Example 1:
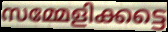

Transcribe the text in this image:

സമ്മേളിക്കട്ടെ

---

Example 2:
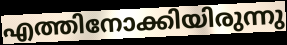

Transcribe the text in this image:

എത്തിനോക്കിയിരുന്നു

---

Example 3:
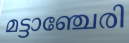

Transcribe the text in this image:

മട്ടാഞ്ചേരി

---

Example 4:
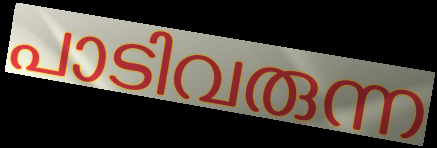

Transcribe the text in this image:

പാടിവരുന്ന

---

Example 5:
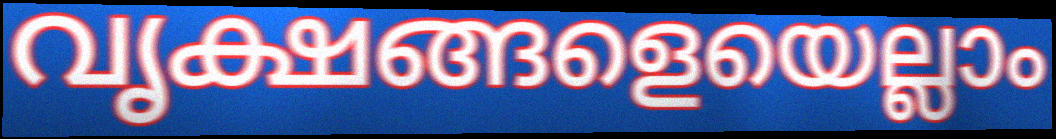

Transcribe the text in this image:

വൃക്ഷങ്ങളെയെല്ലാം